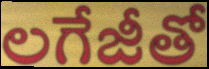
లగేజీతో